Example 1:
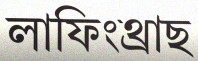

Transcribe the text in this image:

লাফিংথ্ৰাছ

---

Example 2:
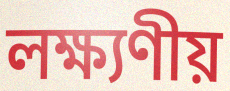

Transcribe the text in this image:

লক্ষ্যণীয়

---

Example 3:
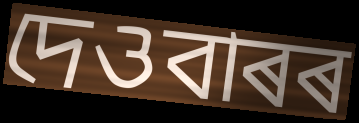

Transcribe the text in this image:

দেওবাৰৰ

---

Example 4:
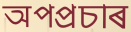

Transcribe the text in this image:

অপপ্ৰচাৰ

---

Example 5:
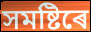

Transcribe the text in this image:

সমষ্টিৰে